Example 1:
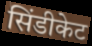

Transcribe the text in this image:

सिंडीकेट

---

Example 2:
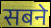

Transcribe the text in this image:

सबने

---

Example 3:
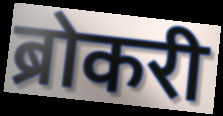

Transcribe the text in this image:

ब्रोकरी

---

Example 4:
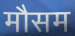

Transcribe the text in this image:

मौसम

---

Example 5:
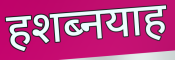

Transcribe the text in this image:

हशब्नयाह